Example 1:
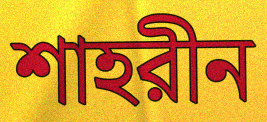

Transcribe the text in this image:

শাহরীন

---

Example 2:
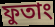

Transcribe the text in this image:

ফুতাং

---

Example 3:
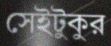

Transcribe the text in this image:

সেইটুকুর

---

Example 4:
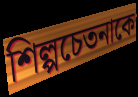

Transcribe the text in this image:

শিল্পচেতনাকে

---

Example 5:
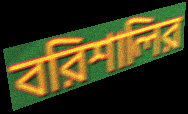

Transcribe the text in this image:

বরিশালির